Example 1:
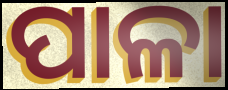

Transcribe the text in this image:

ପାଳା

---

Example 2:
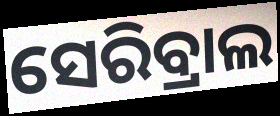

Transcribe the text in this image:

ସେରିବ୍ରାଲ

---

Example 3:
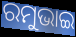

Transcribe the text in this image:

ରମୁଭାଇ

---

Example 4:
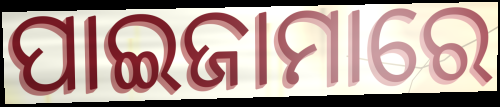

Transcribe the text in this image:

ପାଇଜାମାରେ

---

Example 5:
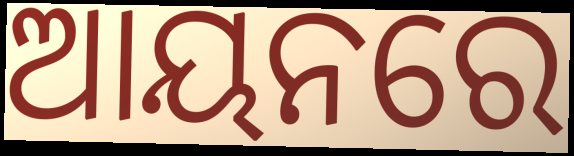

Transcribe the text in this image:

ଆୟନରେ